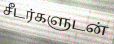
சீடர்களுடன்